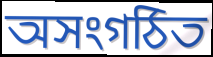
অসংগঠিত